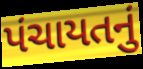
પંચાયતનું